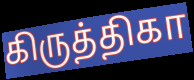
கிருத்திகா